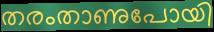
തരംതാണുപോയി